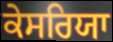
ਕੇਸਰਿਯਾ